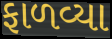
ફાળવ્યા